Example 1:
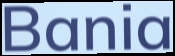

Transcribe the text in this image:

Bania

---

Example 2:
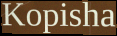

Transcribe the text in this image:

Kopisha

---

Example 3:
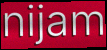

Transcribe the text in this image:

nijam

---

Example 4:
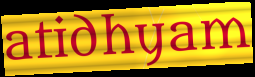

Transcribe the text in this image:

atidhyam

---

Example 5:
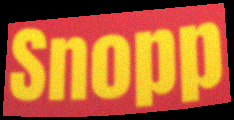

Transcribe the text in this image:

Snopp